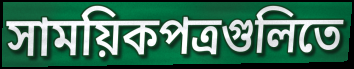
সাময়িকপত্রগুলিতে